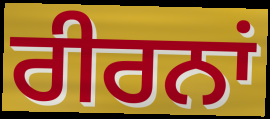
ਰੀਰਨਾਂ